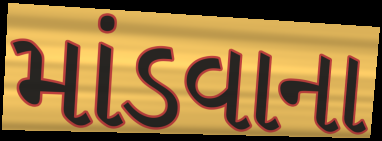
માંડવાના